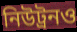
নিউট্রনও